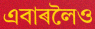
এবাৰলৈও